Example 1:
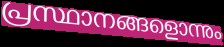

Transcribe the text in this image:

പ്രസ്ഥാനങ്ങളൊന്നും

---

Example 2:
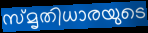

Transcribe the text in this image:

സ്മൃതിധാരയുടെ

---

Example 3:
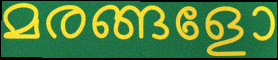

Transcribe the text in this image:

മരങ്ങളോ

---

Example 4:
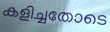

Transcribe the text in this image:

കളിച്ചതോടെ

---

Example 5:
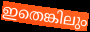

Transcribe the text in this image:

ഇതെങ്കിലും